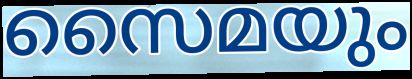
സൈമയും